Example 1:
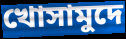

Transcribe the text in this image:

খোসামুদে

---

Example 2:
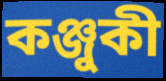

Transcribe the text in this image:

কঞ্জুকী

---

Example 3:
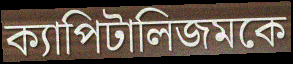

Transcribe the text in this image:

ক্যাপিটালিজমকে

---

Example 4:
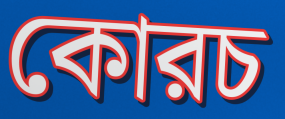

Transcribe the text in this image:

কোরচ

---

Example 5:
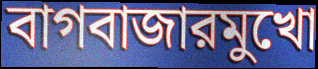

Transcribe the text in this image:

বাগবাজারমুখো